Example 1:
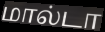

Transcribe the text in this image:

மால்டா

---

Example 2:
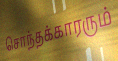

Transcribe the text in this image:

சொந்தக்காரரும்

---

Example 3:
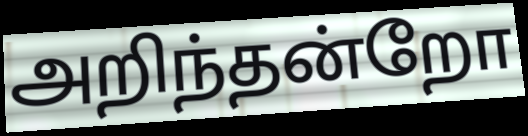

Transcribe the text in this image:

அறிந்தன்றோ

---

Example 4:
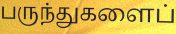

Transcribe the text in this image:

பருந்துகளைப்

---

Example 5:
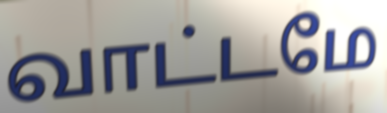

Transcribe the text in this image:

வாட்டமே